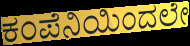
ಕಂಪೆನಿಯಿಂದಲೇ